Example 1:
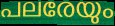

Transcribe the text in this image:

പലരേയും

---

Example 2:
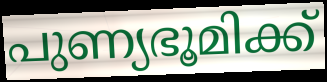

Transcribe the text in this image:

പുണ്യഭൂമിക്ക്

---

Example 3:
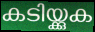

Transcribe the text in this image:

കടിയ്ക്കുക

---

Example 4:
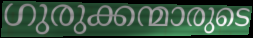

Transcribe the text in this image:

ഗുരുക്കന്മാരുടെ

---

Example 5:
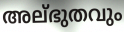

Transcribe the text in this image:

അല്ഭുതവും